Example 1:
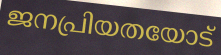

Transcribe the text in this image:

ജനപ്രിയതയോട്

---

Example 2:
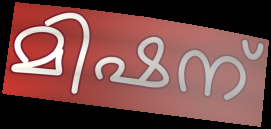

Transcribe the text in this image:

മിഷന്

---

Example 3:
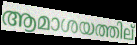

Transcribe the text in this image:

ആമാശയത്തില്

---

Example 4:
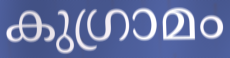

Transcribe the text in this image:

കുഗ്രാമം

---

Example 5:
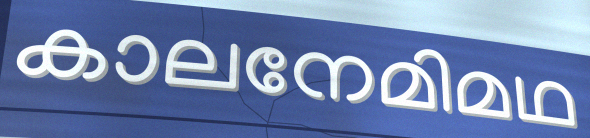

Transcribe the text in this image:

കാലനേമിമഥ